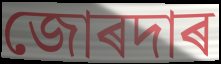
জোৰদাৰ